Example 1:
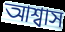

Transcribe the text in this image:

আশ্বাস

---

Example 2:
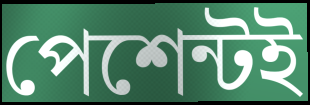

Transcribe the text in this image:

পেশেন্টই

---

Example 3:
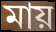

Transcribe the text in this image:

মায়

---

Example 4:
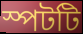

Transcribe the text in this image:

স্পটটি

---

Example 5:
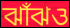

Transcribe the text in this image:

ঝাঁঝও